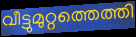
വീട്ടുമുറ്റത്തെത്തി